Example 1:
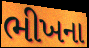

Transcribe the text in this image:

ભીખના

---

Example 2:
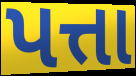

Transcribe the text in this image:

પત્તા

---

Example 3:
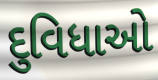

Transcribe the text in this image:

દુવિધાઓ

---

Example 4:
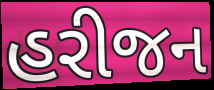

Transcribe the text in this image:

હરીજન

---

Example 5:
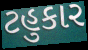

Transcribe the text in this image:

ટહુકાર